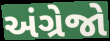
અંગ્રેજો